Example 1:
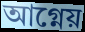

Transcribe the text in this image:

আগ্নেয়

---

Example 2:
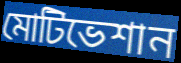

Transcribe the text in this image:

মোটিভেশান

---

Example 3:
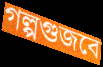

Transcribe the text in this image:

গল্পগুজবে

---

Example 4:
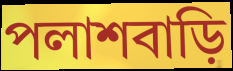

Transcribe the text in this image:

পলাশবাড়ি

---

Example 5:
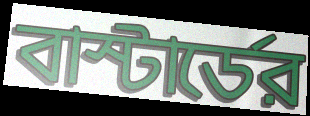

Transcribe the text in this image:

বাস্টার্ডের